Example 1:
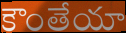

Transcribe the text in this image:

కౌంతేయా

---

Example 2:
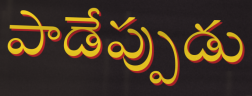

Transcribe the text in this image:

పాడేప్పుడు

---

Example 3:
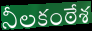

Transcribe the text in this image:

నీలకంఠేశ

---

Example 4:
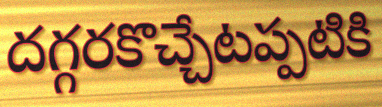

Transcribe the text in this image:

దగ్గరకొచ్చేటప్పటికి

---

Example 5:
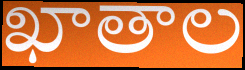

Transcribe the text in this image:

ఖాతాల